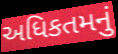
અધિકતમનું